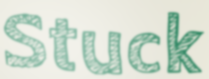
Stuck